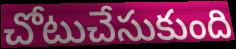
చోటుచేసుకుంది